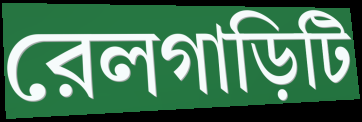
রেলগাড়িটি